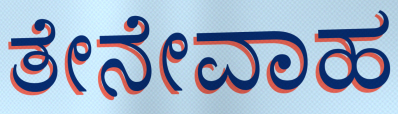
ತೇನೇವಾಹ